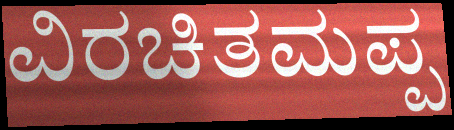
ವಿರಚಿತಮಪ್ಪ